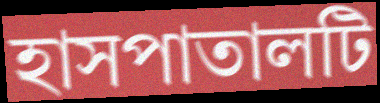
হাসপাতালটি